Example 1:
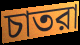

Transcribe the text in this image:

চাতরা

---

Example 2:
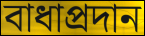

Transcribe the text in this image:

বাধাপ্রদান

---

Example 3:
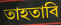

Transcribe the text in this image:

তাহতাবি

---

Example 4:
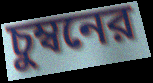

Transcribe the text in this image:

চুম্বনের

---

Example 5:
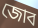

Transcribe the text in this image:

জোব